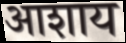
आशाय